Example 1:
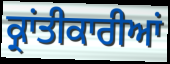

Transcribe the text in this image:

ਕ੍ਰਾਂਤੀਕਾਰੀਆਂ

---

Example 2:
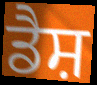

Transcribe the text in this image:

ਡੈਸ਼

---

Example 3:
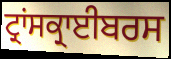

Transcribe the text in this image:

ਟ੍ਰਾਂਸਕ੍ਰਾਈਬਰਸ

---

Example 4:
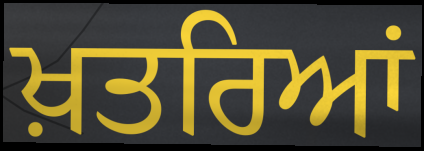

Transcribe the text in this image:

ਖ਼ਤਰਿਆਂ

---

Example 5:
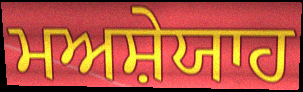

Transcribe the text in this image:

ਮਅਸ਼ੇਯਾਹ